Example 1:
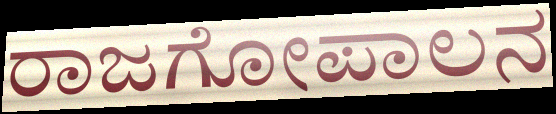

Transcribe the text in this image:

ರಾಜಗೋಪಾಲನ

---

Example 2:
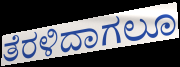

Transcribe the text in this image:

ತೆರಳಿದಾಗಲೂ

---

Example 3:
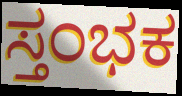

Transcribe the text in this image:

ಸ್ತಂಭಕ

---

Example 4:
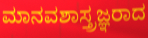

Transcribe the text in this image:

ಮಾನವಶಾಸ್ತ್ರಜ್ಞರಾದ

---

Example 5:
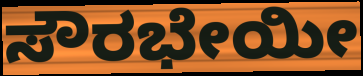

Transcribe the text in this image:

ಸೌರಭೇಯೀ